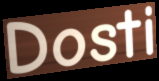
Dosti